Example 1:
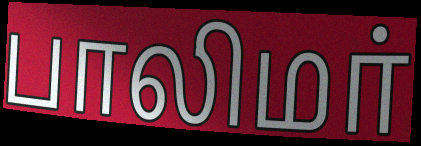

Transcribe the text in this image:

பாலிமர்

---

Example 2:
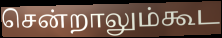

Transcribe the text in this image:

சென்றாலும்கூட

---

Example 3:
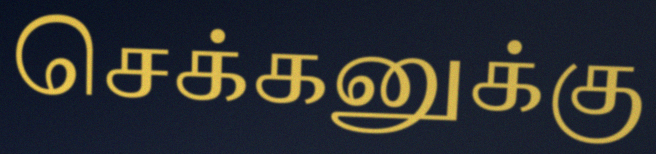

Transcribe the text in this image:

செக்கனுக்கு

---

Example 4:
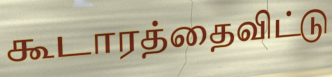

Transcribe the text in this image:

கூடாரத்தைவிட்டு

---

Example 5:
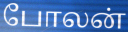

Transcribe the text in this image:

போலன்